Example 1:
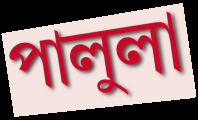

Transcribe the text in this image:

পালুলা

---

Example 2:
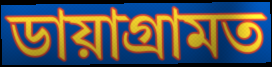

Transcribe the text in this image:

ডায়াগ্ৰামত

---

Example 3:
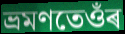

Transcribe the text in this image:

ভ্ৰমণতেওঁৰ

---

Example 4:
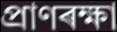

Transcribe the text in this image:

প্ৰাণৰক্ষা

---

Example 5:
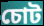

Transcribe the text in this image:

চোট